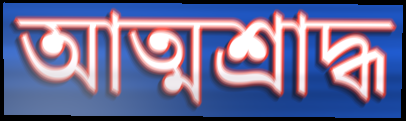
আত্মশ্রাদ্ধ